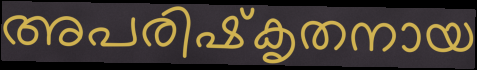
അപരിഷ്‌കൃതനായ